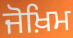
ਜੋਖ਼ਿਮ